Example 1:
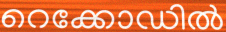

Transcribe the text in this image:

റെക്കോഡിൽ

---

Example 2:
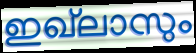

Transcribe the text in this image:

ഇഖ്‌ലാസും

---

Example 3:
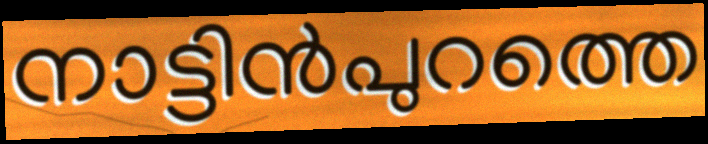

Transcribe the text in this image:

നാട്ടിൻപുറത്തെ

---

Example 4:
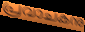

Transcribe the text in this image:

പ്രവാചകനു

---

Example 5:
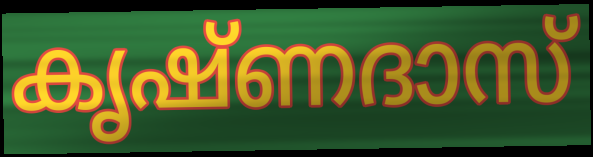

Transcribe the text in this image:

കൃഷ്ണദാസ്